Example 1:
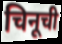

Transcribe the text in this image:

चिनूची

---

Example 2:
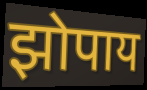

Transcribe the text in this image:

झोपाय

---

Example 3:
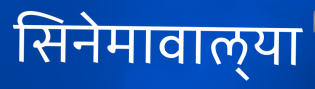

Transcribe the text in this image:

सिनेमावाल्या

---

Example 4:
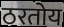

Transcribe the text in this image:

ठरतोय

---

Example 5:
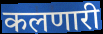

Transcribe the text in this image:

कलणारी